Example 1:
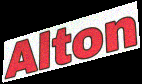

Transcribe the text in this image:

Alton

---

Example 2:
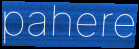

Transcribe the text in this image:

pahere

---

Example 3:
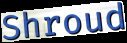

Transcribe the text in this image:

Shroud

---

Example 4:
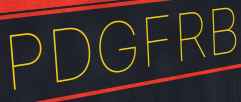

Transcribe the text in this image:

PDGFRB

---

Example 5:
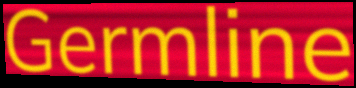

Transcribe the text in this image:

Germline